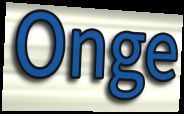
Onge